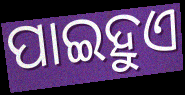
ପାଇହୁଏ